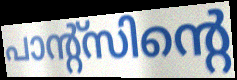
പാന്റ്സിന്റെ